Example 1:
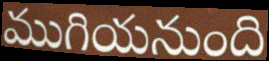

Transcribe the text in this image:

ముగియనుంది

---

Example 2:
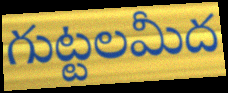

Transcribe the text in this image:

గుట్టలమీద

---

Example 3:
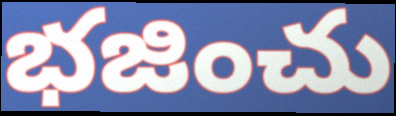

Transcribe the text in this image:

భజించు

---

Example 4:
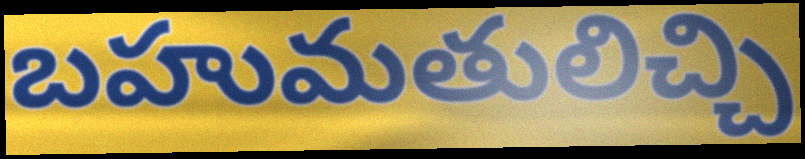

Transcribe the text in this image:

బహుమతులిచ్చి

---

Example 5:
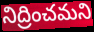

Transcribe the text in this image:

నిద్రించమని